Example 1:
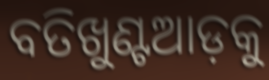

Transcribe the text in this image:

ବତିଖୁଣ୍ଟଆଡ଼କୁ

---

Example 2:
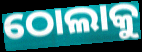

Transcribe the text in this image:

ଠୋଲାକୁ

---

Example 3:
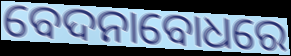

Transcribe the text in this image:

ବେଦନାବୋଧରେ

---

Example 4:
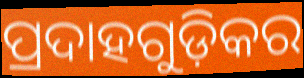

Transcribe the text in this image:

ପ୍ରଦାହଗୁଡ଼ିକର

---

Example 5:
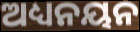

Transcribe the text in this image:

ଅଧ୍ୟନୟନ